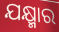
ଯକ୍ଷ୍ମାର